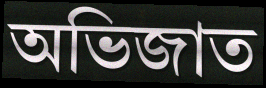
অভিজাত